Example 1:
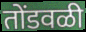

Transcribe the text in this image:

तोंडवळी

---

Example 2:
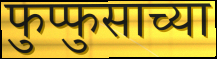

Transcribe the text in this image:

फुप्फुसाच्या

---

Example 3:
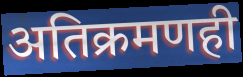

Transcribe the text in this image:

अतिक्रमणही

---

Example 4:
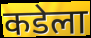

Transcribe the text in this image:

कडेला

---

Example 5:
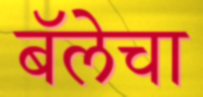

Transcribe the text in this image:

बॅलेचा